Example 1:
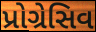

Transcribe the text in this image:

પ્રોગ્રેસિવ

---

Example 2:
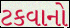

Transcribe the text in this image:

ટકવાનો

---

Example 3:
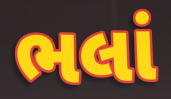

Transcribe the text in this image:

ભલાં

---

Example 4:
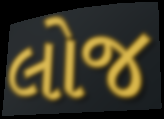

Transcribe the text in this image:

લોજ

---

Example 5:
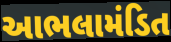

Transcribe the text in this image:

આભલામંડિત